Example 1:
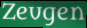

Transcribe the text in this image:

Zeugen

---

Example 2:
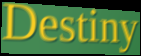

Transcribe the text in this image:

Destiny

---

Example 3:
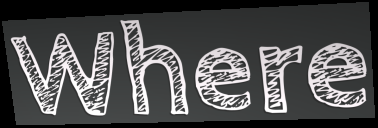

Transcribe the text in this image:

Where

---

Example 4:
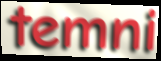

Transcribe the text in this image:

temni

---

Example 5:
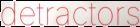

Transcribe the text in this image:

detractors